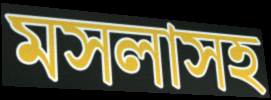
মসলাসহ